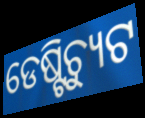
ଡେଷ୍ଟିଚ୍ୟୁଟ